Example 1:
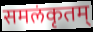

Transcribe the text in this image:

समलंकृतम्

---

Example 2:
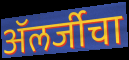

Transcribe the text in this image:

ॲलर्जीचा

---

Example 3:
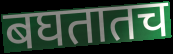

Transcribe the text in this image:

बघतातच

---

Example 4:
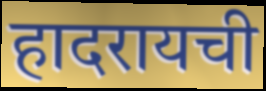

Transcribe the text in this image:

हादरायची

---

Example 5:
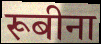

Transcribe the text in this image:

रूबीना